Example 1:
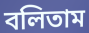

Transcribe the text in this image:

বলিতাম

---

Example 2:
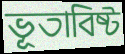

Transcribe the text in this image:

ভূতাবিষ্ট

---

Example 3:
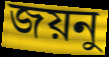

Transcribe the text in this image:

জয়নু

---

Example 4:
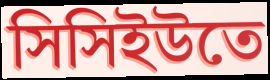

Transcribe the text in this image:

সিসিইউতে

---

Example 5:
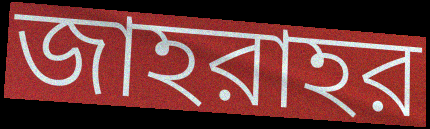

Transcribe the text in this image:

জাহরাহর